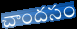
చాందసం